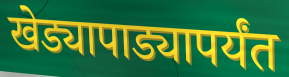
खेड्यापाड्यापर्यंत